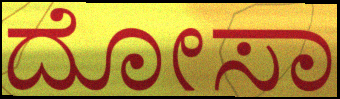
ದೋಸಾ